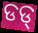
ଡଡ୍